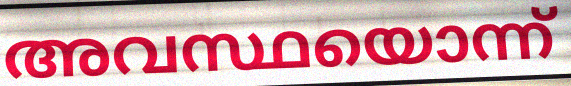
അവസ്ഥയൊന്ന്